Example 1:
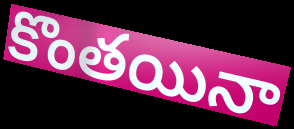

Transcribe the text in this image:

కొంతయినా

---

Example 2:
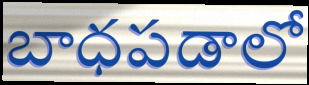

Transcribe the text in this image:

బాధపడాలో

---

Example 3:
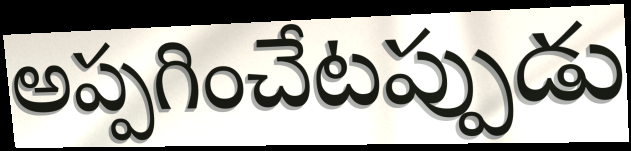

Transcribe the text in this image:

అప్పగించేటప్పుడు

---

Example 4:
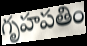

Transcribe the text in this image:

గృహపతిం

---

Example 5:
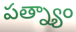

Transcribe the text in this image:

పత్న్యాం